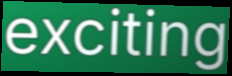
exciting